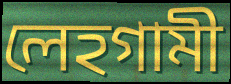
লেহগামী